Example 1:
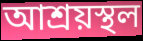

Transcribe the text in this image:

আশ্রয়স্থল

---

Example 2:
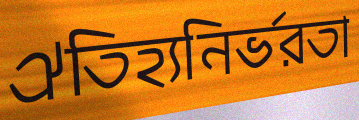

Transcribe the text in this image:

ঐতিহ্যনির্ভরতা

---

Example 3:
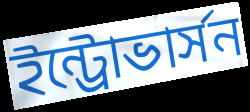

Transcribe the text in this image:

ইন্ট্রোভার্সন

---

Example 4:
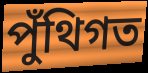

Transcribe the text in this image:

পুঁথিগত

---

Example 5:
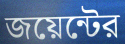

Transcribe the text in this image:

জয়েন্টের